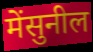
मेंसुनील